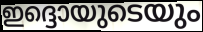
ഇദ്ദൊയുടെയും